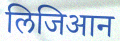
लिजिआन